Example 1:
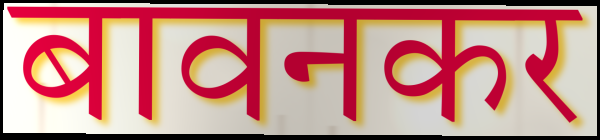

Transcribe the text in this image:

बावनकर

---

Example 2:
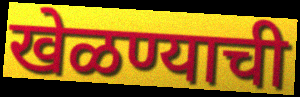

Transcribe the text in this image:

खेळण्याची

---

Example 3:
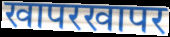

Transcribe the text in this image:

खापरखापर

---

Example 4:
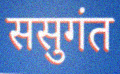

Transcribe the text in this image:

ससुगंत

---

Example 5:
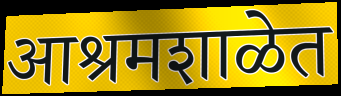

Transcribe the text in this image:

आश्रमशाळेत